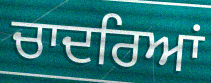
ਚਾਦਰਿਆਂ